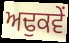
ਅਢੁਕਵੇਂ